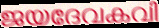
ജയദേവകവി